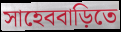
সাহেববাড়িতে